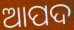
ଆପଦ